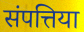
संपत्तिया